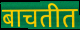
बाचतीत